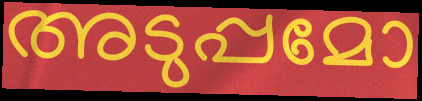
അടുപ്പമോ